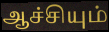
ஆச்சியும்